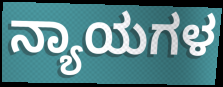
ನ್ಯಾಯಗಳ